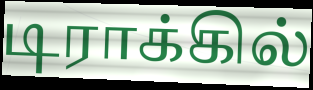
டிராக்கில்